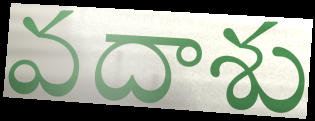
వదాశు